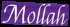
Mollah